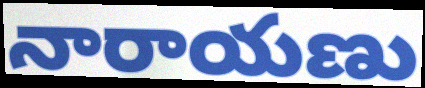
నారాయణు